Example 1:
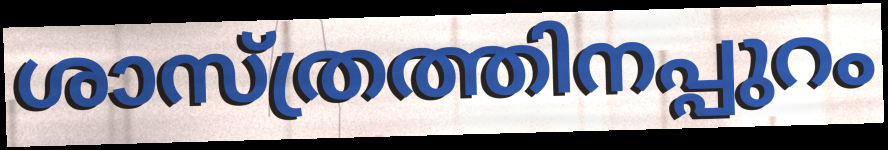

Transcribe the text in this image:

ശാസ്ത്രത്തിനപ്പുറം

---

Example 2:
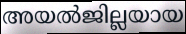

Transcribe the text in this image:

അയൽജില്ലയായ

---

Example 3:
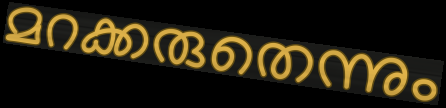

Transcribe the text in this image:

മറക്കരുതെന്നും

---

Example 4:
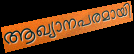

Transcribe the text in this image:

ആഖ്യാനപരമായി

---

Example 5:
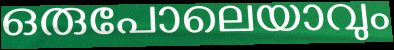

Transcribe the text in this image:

ഒരുപോലെയാവും